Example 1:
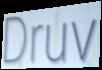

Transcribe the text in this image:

Druv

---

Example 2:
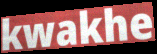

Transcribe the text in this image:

kwakhe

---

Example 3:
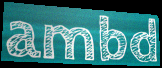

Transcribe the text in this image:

ambd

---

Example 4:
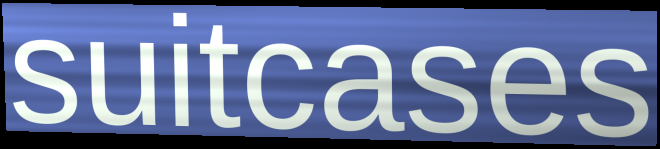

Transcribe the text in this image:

suitcases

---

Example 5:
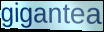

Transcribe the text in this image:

gigantea